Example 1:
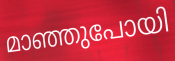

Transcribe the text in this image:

മാഞ്ഞുപോയി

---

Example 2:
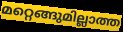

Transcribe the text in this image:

മറ്റെങ്ങുമില്ലാത്ത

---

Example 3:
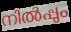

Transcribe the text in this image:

നിൽപ്പും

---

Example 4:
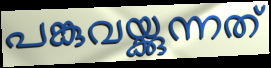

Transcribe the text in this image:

പങ്കുവയ്ക്കുന്നത്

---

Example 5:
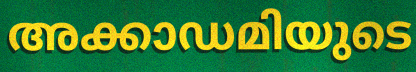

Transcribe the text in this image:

അക്കാഡമിയുടെ